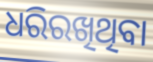
ଧରିରଖିଥିବା